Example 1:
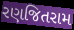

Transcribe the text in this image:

રણજિતરામ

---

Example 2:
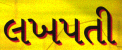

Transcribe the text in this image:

લખપતી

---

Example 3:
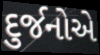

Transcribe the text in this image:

દુર્જનોએ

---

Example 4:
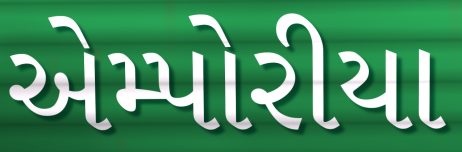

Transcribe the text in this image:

એમ્પોરીયા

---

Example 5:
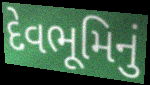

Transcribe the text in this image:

દેવભૂમિનું